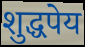
शुद्धपेय